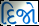
દિજો